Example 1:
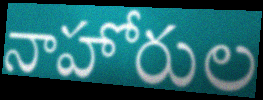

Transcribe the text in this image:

నాహోరుల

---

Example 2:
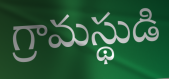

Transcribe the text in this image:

గ్రామస్థుడి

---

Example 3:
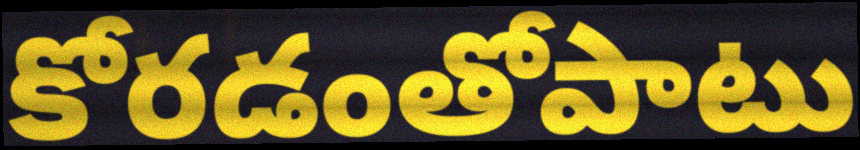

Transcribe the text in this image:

కోరడంతోపాటు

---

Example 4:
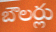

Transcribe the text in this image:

బౌలర్లు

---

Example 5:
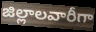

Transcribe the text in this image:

జిల్లాలవారీగా